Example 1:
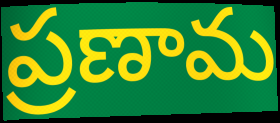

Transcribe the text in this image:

ప్రణామ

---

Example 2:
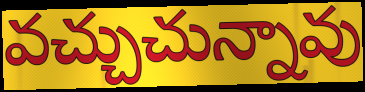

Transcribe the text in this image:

వచ్చుచున్నావు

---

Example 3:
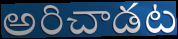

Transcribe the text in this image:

అరిచాడట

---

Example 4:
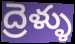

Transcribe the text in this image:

ద్రెళ్ళు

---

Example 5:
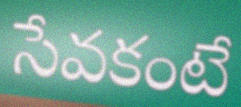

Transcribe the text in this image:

సేవకంటే